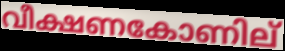
വീക്ഷണകോണില്